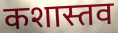
कशास्तव